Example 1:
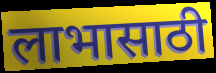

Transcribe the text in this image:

लाभासाठी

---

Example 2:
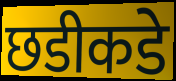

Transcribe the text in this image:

छडीकडे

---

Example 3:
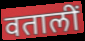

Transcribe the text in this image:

वतालीं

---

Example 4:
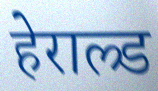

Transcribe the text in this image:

हेराल्ड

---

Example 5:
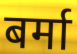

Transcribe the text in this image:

बर्मा